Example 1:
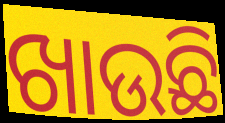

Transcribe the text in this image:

ଖାଉଛି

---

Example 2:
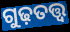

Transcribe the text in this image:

ଗୁଢ଼ତତ୍ତ୍ୱ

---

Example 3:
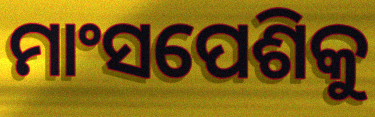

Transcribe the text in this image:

ମାଂସପେଶିକୁ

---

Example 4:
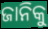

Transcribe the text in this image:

ଜାନିକୁ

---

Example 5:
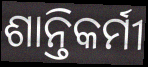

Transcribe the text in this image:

ଶାନ୍ତିକର୍ମୀ